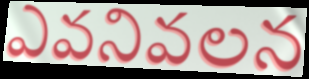
ఎవనివలన